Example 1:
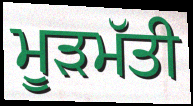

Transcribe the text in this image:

ਮੂੜਮੱਤੀ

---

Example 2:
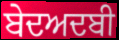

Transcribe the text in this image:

ਬੇਦਅਦਬੀ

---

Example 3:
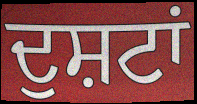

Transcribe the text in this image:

ਦੁਸ਼ਟਾਂ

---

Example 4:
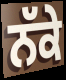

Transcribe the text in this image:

ਨੱਕੇ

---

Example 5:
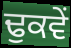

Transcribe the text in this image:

ਢੁਕਵੇਂ